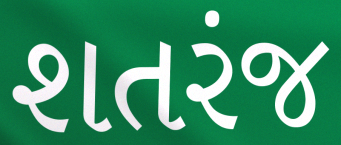
શતરંજ